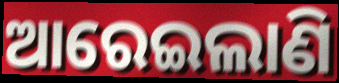
ଆରେଇଲାଣି